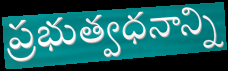
ప్రభుత్వధనాన్ని